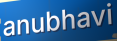
anubhavi